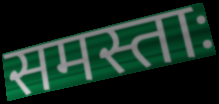
समस्ताः